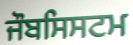
ਜੌਬਸਿਸਟਮ